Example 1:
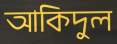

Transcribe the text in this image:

আকিদুল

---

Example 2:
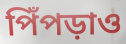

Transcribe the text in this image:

পিঁপড়াও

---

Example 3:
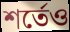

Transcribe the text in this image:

শর্তেও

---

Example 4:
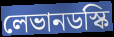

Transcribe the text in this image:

লেভানডস্কি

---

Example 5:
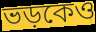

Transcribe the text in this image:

ভড়কেও